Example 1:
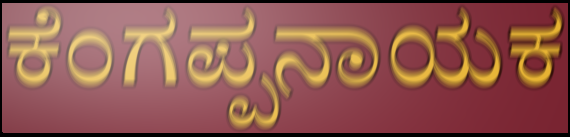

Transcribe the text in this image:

ಕೆಂಗಪ್ಪನಾಯಕ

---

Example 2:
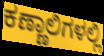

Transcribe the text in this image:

ಕಣ್ಣಾಲಿಗಳಲ್ಲಿ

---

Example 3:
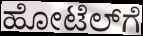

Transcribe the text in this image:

ಹೋಟೆಲ್‌ಗೆ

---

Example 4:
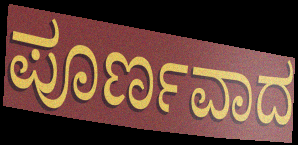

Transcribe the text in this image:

ಪೂರ್ಣವಾದ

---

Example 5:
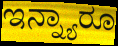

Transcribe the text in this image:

ಇನ್ನ್ಯಾರೂ